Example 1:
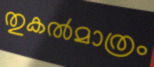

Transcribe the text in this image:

തുകൽമാത്രം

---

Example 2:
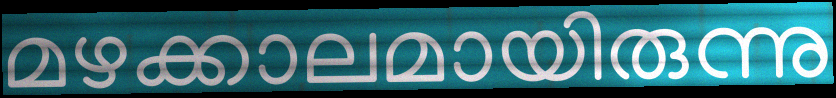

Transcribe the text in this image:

മഴക്കാലമായിരുന്നു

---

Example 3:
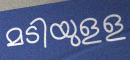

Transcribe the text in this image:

മടിയുളള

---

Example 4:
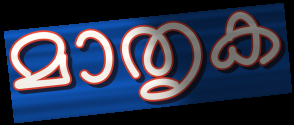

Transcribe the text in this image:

മാതൃക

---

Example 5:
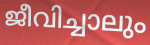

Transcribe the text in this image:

ജീവിച്ചാലും